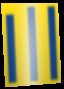
Ill